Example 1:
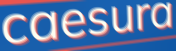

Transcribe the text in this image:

caesura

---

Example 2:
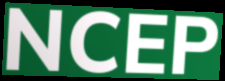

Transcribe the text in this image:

NCEP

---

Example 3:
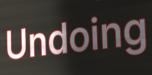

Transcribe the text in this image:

Undoing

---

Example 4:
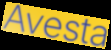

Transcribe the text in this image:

Avesta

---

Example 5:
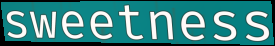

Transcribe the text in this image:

sweetness